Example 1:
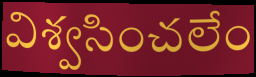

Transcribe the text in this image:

విశ్వసించలేం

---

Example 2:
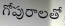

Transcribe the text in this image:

గోపురాలతో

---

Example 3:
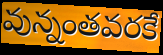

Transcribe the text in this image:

వున్నంతవరకే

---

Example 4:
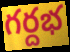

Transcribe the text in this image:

గర్దభ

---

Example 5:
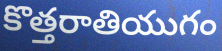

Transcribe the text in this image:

కొత్తరాతియుగం